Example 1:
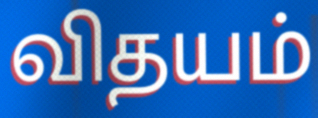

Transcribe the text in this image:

விதயம்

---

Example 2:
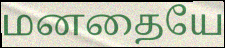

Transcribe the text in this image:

மனதையே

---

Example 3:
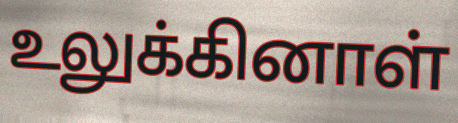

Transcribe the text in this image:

உலுக்கினாள்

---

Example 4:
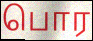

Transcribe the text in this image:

பொர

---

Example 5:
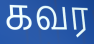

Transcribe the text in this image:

கவர